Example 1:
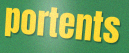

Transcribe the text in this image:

portents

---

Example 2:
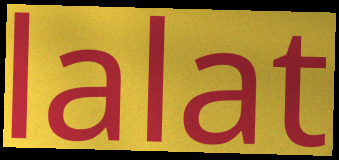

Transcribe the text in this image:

lalat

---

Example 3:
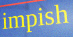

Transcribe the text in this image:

impish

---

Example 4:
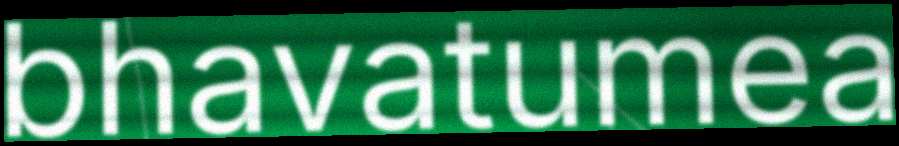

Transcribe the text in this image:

bhavatumea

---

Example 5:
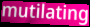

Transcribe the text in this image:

mutilating